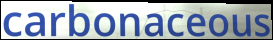
carbonaceous